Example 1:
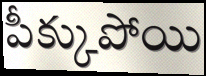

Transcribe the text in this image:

పీక్కుపోయి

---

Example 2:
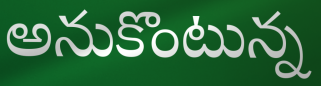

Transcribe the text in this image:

అనుకొంటున్న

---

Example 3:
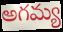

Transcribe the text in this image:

అగమ్య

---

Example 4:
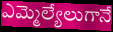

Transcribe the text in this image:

ఎమ్మెల్యేలుగానే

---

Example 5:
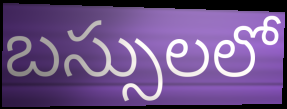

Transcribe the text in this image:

బస్సులలో